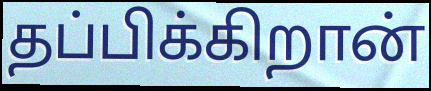
தப்பிக்கிறான்